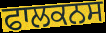
ਫਾਲਕਨਸ